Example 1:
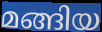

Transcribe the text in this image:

മങ്ങിയ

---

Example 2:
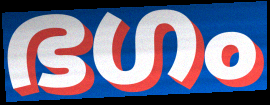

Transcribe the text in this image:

ഭഗം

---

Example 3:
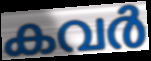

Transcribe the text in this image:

കവർ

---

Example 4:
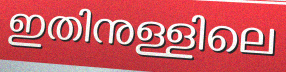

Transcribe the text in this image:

ഇതിനുള്ളിലെ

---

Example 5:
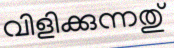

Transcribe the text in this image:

വിളിക്കുന്നതു്